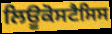
ਲਿਊਕੋਸਟੈਸਿਸ